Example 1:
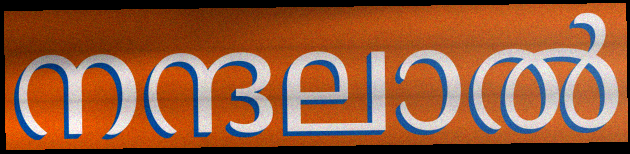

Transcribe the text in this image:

നന്ദലാൽ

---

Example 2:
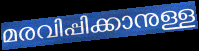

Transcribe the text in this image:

മരവിപ്പിക്കാനുള്ള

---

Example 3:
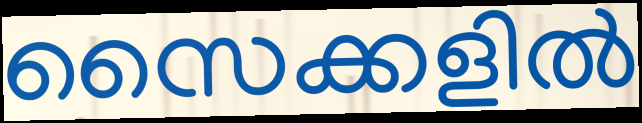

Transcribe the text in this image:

സൈക്കളിൽ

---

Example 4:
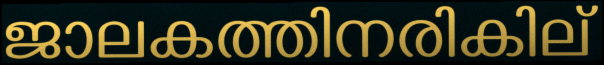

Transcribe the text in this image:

ജാലകത്തിനരികില്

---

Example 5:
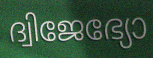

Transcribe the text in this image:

ദ്വിജേഭ്യോ